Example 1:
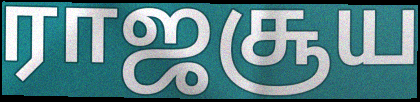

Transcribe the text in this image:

ராஜசூய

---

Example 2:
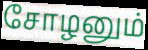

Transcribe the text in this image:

சோழனும்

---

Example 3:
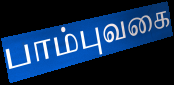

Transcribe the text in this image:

பாம்புவகை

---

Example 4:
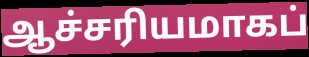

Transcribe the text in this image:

ஆச்சரியமாகப்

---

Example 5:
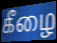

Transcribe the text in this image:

கீழை